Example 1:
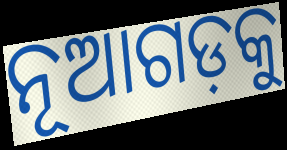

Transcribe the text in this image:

ନୂଆଗଡ଼କୁ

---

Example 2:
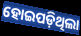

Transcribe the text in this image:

ହୋଇପଡ଼ିଥିଲା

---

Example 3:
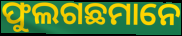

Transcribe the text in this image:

ଫୁଲଗଛମାନେ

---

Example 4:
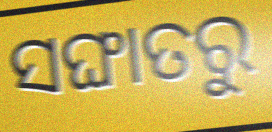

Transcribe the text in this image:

ସଙ୍ଘାତରୁ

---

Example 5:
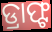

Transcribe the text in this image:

ଡ୍ରାଫ୍ଟ